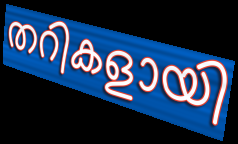
തറികളായി